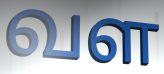
வள